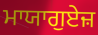
ਮਾਯਾਗੁਏਜ਼